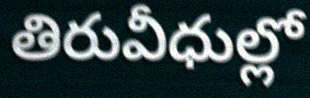
తిరువీధుల్లో